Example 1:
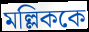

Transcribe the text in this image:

মল্লিককে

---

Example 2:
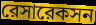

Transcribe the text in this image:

রেসারেকসন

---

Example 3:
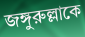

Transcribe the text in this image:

জঙ্গুরুল্লাকে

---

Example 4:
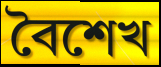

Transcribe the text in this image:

বৈশেখ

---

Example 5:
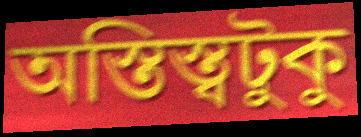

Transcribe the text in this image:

অস্তিস্ত্বটুকু